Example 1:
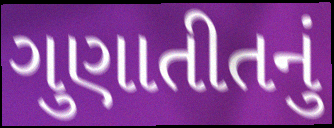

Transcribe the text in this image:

ગુણાતીતનું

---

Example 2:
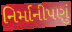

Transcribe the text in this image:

નિર્માનીપણું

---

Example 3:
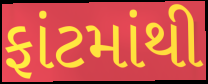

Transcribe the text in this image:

ફાંટમાંથી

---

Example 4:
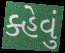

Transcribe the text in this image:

ક્હેવું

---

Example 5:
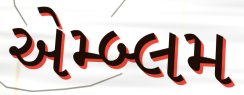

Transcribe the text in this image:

એમ્બ્લમ